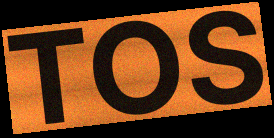
TOS